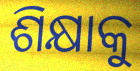
ଶିକ୍ଷାକୁ